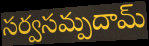
సర్వసమ్పదామ్